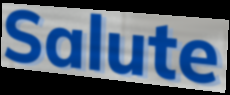
Salute